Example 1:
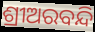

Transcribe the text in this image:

ଶ୍ରୀଅରବନ୍ଦି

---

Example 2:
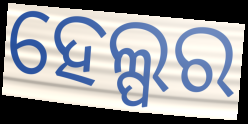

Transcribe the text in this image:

ହେଲ୍ପର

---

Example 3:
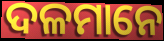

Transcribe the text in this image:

ଦଳମାନେ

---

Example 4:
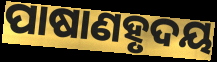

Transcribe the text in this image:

ପାଷାଣହୃଦୟ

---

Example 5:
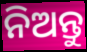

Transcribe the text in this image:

ନିଅନ୍ତୁ